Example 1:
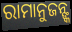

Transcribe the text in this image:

ରାମାନୁଜନ୍ଙ୍କ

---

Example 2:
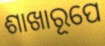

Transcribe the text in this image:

ଶାଖାରୂପେ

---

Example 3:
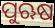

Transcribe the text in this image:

ପୁଋଷ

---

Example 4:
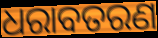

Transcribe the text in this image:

ଧରାବତରଣ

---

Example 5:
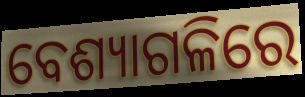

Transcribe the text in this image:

ବେଶ୍ୟାଗଳିରେ